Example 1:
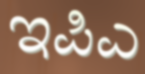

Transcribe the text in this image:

ಇಪಿಎ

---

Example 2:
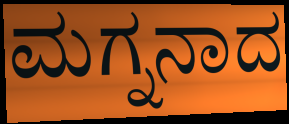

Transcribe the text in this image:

ಮಗ್ನನಾದ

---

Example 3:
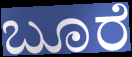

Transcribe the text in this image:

ಬೂರೆ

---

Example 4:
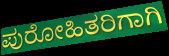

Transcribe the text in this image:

ಪುರೋಹಿತರಿಗಾಗಿ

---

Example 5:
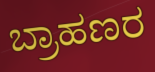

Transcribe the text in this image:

ಬ್ರಾಹಣರ